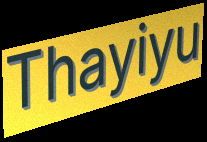
Thayiyu